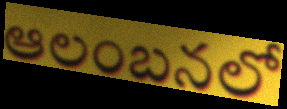
ఆలంబనలో